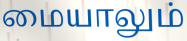
மையாலும்